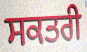
ਸਕਤਰੀ